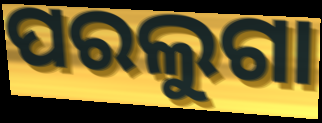
ପରଲୁଗା